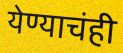
येण्याचंही